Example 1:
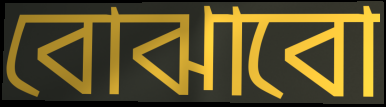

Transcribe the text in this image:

বোঝাবো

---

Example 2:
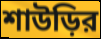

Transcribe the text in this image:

শাউড়ির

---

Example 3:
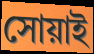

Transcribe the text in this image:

সোয়াই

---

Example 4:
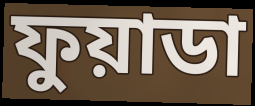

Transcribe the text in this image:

ফুয়াডা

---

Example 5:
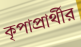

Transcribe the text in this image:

কৃপাপ্রার্থীর